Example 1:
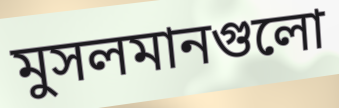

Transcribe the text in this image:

মুসলমানগুলো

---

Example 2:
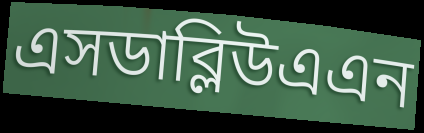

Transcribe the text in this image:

এসডাব্লিউএএন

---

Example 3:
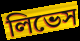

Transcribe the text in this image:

লিভেস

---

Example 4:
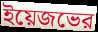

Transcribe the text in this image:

ইয়েজভের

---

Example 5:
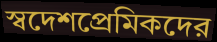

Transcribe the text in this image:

স্বদেশপ্রেমিকদের